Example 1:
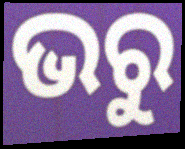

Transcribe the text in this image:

ଭରୁ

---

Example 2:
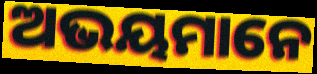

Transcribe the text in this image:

ଅଭୟମାନେ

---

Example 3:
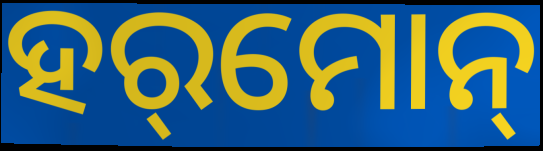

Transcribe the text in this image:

ହର୍‌ମୋନ୍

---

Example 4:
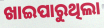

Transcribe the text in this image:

ଖାଇପାରୁଥିଲା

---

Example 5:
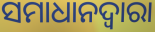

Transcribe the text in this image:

ସମାଧାନଦ୍ୱାରା